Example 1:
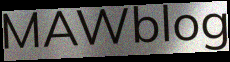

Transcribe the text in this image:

MAWblog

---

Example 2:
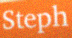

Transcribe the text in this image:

Steph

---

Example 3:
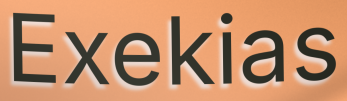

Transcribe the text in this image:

Exekias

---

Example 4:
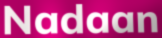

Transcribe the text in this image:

Nadaan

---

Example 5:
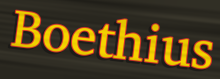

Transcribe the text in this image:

Boethius